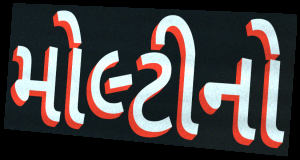
મોલ્ટીનો